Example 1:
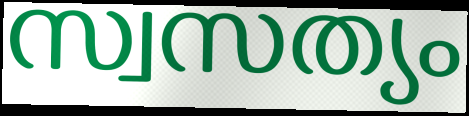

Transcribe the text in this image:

സ്വസത്യം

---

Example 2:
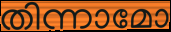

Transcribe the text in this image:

തിന്നാമോ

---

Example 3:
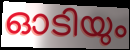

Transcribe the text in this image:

ഓടിയും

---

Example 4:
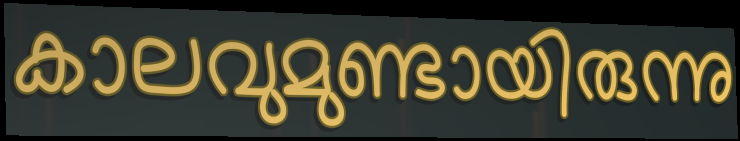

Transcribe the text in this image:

കാലവുമുണ്ടായിരുന്നു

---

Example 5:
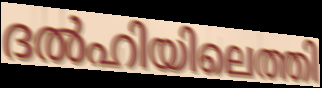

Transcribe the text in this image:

ദൽഹിയിലെത്തി